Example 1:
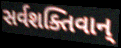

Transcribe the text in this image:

સર્વશક્તિવાન્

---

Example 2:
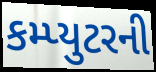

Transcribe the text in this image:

કમ્પ્યુટરની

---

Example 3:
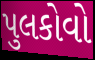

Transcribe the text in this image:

પુલકોવો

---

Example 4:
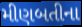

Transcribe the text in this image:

મીણબતીના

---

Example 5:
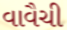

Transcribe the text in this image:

વાવૈચી